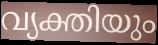
വ്യക്തിയും